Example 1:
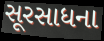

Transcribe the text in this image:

સૂરસાધના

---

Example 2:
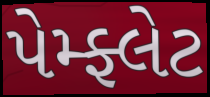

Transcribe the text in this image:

પેમ્ફ્લેટ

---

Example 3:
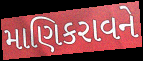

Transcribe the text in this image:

માણિકરાવને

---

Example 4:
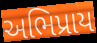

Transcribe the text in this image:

અભિપ્રાય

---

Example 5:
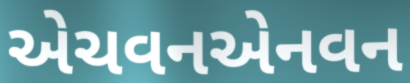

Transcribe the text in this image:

એચવનએનવન